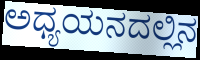
ಅಧ್ಯಯನದಲ್ಲಿನ